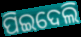
ପିଇଦେଲି